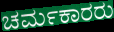
ಚರ್ಮಕಾರರು